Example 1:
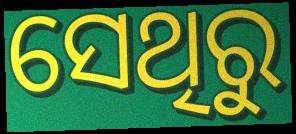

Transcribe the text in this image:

ସେଥିରୁ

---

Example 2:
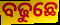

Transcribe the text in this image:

ବଢୁଛେ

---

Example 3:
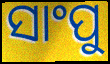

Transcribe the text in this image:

ସାଂପୁ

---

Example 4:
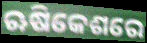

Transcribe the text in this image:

ଋଷିକେଶରେ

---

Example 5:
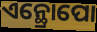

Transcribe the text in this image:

ଏନ୍ଥ୍ରୋପୋ